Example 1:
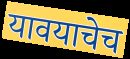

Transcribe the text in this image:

यावयाचेच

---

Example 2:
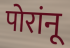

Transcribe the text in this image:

पोरांनू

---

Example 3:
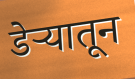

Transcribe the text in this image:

डेऱ्यातून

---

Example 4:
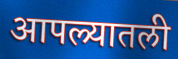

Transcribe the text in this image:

आपल्यातली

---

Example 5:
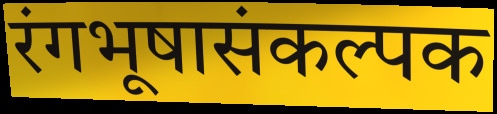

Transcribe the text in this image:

रंगभूषासंकल्पक